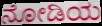
ನೋಡಿಯ